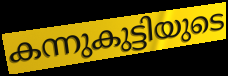
കന്നുകുട്ടിയുടെ